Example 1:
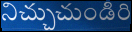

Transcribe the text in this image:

నిచ్చుచుండిరి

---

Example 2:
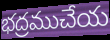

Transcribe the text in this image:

భద్రముచేయ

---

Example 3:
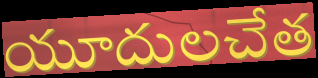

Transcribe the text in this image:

యూదులచేత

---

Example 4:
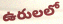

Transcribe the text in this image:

ఉరులలో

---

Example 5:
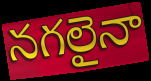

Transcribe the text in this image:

నగలైనా